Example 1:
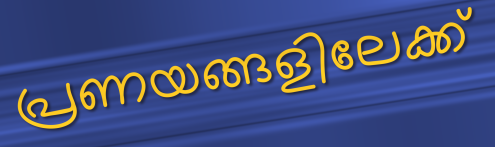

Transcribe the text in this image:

പ്രണയങ്ങളിലേക്ക്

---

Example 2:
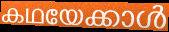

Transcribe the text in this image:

കഥയേക്കാൾ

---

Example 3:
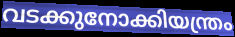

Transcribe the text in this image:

വടക്കുനോക്കിയന്ത്രം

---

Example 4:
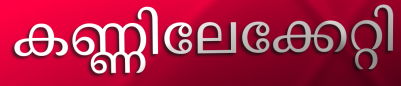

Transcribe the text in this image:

കണ്ണിലേക്കേറ്റി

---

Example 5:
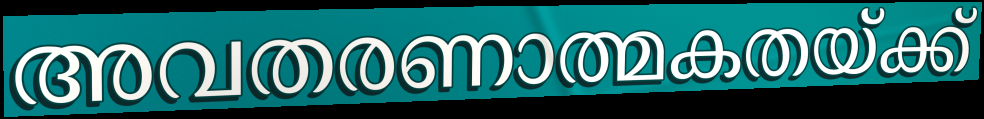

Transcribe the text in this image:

അവതരണാത്മകതയ്ക്ക്